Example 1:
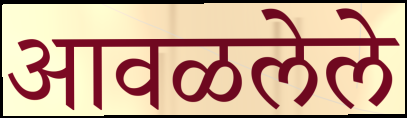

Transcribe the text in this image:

आवळलेले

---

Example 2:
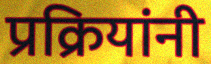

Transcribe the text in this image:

प्रक्रियांनी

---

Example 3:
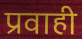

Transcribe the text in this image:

प्रवाही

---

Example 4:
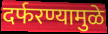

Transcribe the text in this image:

दर्फरण्यामुळे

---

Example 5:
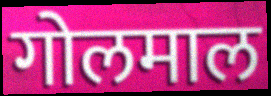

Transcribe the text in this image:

गोलमाल